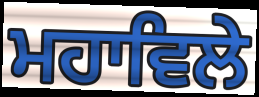
ਮਹਾਵਿਲੇ